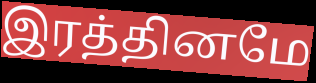
இரத்தினமே